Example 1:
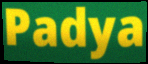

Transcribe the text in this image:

Padya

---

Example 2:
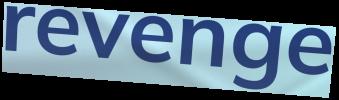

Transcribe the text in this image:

revenge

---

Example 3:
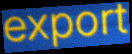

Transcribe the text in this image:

export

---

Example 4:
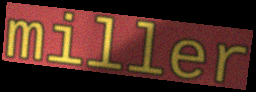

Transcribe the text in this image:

miller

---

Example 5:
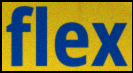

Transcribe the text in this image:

flex